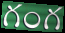
గంగ